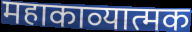
महाकाव्‍यात्‍मक